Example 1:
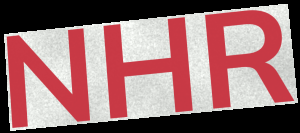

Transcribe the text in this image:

NHR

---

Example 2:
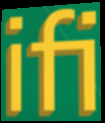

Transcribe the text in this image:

ifi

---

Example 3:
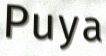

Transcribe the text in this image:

Puya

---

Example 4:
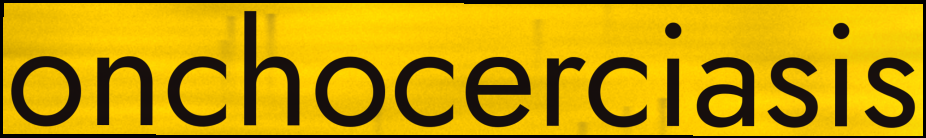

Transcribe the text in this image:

onchocerciasis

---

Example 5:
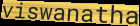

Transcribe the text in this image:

viswanatha